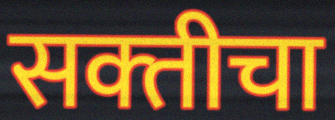
सक्‍तीचा